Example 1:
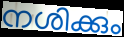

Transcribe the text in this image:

നശിക്കും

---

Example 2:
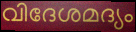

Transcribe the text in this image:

വിദേശമദ്യം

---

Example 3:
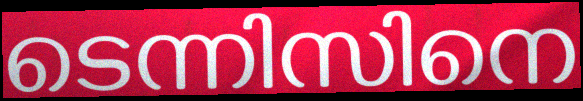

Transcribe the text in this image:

ടെന്നിസിനെ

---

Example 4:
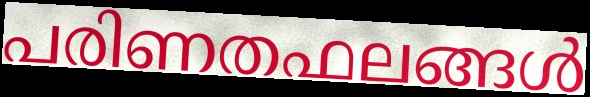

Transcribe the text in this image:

പരിണതഫലങ്ങൾ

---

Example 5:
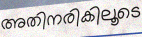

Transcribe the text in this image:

അതിനരികിലൂടെ